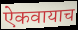
ऐकवायाच